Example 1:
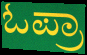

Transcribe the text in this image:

ಓಪ್ರಾ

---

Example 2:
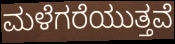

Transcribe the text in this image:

ಮಳೆಗರೆಯುತ್ತವೆ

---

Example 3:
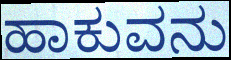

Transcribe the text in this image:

ಹಾಕುವನು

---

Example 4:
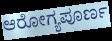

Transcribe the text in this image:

ಆರೋಗ್ಯಪೂರ್ಣ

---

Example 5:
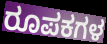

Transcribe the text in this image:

ರೂಪಕಗಳ